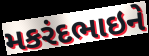
મકરંદભાઇને